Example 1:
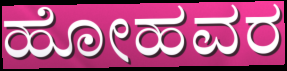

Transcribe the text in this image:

ಹೋಹವರ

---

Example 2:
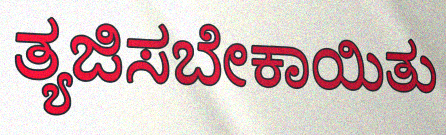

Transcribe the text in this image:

ತ್ಯಜಿಸಬೇಕಾಯಿತು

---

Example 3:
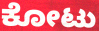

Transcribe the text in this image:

ಕೋಟು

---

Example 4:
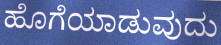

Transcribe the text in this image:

ಹೊಗೆಯಾಡುವುದು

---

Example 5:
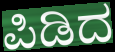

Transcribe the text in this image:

ಪಿಡಿದ